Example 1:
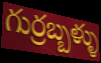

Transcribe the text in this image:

గుర్రబ్బళ్ళు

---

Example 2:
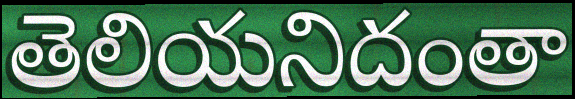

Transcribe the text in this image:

తెలియనిదంతా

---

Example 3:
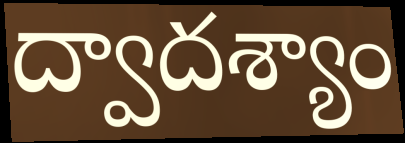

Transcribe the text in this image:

ద్వాదశ్యాం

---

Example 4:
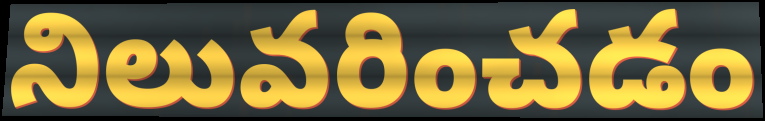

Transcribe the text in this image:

నిలువరించడం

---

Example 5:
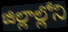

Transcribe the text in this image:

జిల్లాల్లోని